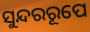
ସୁନ୍ଦରରୂପେ